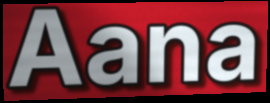
Aana